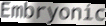
Embryonic